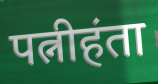
पत्नीहंता